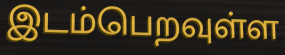
இடம்பெறவுள்ள